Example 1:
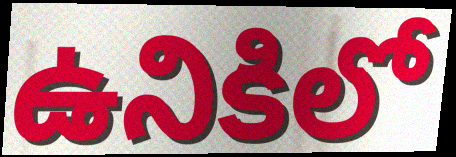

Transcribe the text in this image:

ఉనికిలో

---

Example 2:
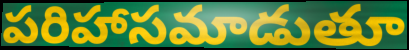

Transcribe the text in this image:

పరిహాసమాడుతూ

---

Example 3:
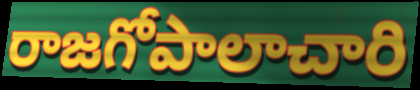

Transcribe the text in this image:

రాజగోపాలాచారి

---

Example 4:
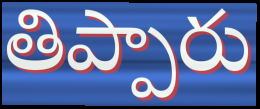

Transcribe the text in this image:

తిప్పారు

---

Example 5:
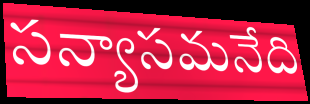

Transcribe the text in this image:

సన్యాసమనేది